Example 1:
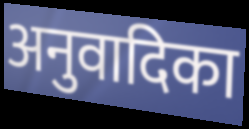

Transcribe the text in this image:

अनुवादिका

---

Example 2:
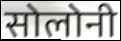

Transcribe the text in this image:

सोलोनी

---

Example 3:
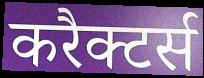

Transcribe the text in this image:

करैक्टर्स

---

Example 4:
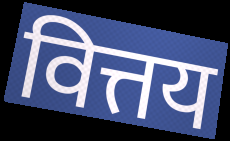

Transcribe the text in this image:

वित्तय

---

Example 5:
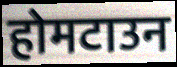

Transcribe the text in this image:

होमटाउन